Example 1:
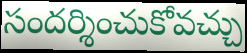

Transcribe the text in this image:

సందర్శించుకోవచ్చు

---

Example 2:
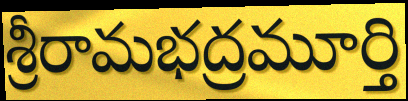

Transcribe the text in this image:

శ్రీరామభద్రమూర్తి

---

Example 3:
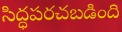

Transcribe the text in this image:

సిద్ధపరచబడింది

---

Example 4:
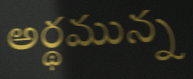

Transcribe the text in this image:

అర్థమున్న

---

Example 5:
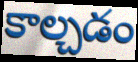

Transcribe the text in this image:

కాల్చడం